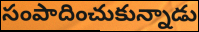
సంపాదించుకున్నాడు